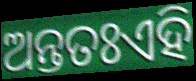
ଅନ୍ତତଃଏହି